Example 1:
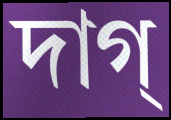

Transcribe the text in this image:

দাগ্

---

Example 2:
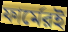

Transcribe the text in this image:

ফার্মেরই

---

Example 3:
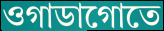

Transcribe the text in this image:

ওগাডাগোতে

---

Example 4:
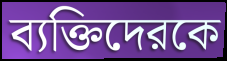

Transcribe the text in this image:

ব্যক্তিদেরকে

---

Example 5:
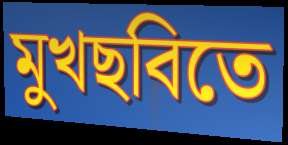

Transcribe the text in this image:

মুখছবিতে